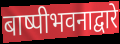
बाष्पीभवनाद्वारे